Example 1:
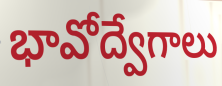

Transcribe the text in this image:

భావోద్వేగాలు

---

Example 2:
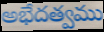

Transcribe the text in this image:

అభేదత్వము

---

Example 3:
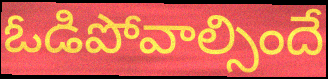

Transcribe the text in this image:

ఓడిపోవాల్సిందే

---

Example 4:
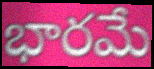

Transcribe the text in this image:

భారమే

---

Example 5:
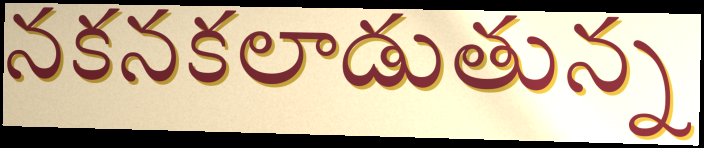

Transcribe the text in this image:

నకనకలాడుతున్న